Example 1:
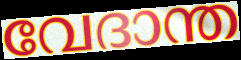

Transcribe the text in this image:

വേദാന്ത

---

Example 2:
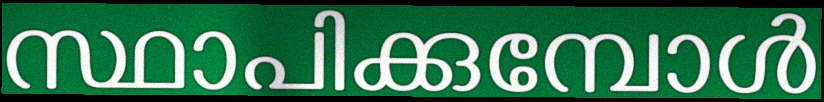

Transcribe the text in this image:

സ്ഥാപിക്കുമ്പോൾ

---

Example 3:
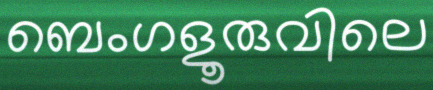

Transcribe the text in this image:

ബെംഗളൂരുവിലെ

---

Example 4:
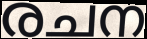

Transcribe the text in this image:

രചന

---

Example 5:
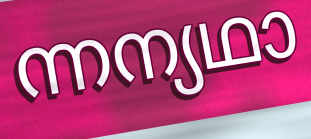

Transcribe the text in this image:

ന്നന്യഥാ